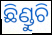
ଛିଣ୍ଡୁଚି